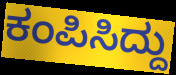
ಕಂಪಿಸಿದ್ದು